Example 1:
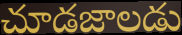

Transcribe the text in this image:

చూడజాలడు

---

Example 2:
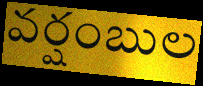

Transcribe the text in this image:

వర్షంబుల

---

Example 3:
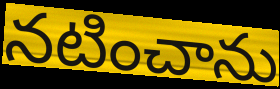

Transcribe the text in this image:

నటించాను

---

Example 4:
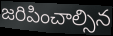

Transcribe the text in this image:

జరిపించాల్సిన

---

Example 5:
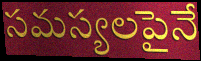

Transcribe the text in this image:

సమస్యలపైనే